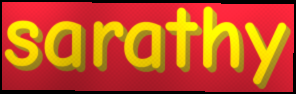
sarathy